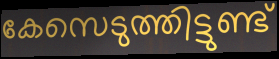
കേസെടുത്തിട്ടുണ്ട്